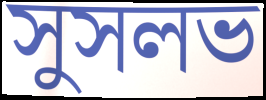
সুসলভ